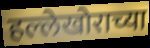
हल्लेखोराच्या